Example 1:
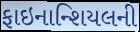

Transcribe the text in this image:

ફાઇનાન્શિયલની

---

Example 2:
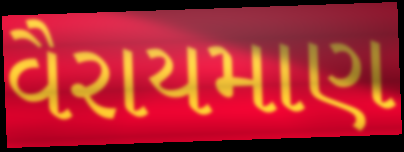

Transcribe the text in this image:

વૈરાયમાણ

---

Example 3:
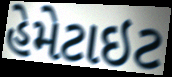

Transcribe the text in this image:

હેમેટાઇટ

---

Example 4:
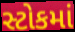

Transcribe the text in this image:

સ્ટોકમાં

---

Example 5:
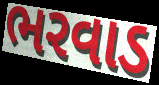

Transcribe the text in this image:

ભરવાડ